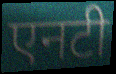
एनटी